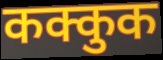
कक्कुक